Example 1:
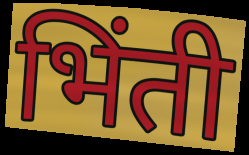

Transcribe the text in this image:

भिंती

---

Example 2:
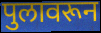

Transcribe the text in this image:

पुलावरून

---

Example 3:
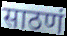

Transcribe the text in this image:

साठणं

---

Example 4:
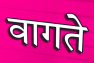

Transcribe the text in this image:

वागते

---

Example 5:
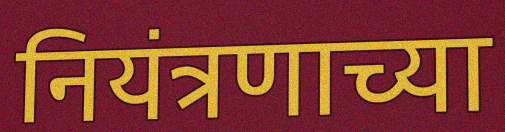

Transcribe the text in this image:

नियंत्रणाच्या